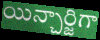
యిన్చార్జిగా